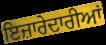
ਇਜ਼ਾਰੇਦਾਰੀਆਂ